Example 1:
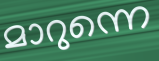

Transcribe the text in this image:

മാറുന്നെ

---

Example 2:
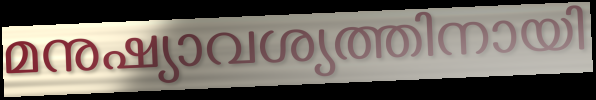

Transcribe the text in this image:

മനുഷ്യാവശ്യത്തിനായി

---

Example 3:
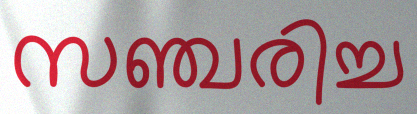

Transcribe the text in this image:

സഞ്ചരിച്ച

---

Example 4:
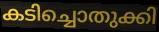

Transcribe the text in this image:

കടിച്ചൊതുക്കി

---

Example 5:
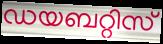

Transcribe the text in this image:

ഡയബറ്റിസ്